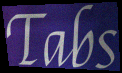
Tabs